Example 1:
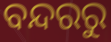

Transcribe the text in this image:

ବନ୍ଦରରୁ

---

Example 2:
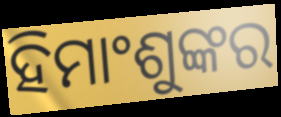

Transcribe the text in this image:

ହିମାଂଶୁଙ୍କର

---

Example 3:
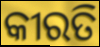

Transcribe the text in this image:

କୀରତି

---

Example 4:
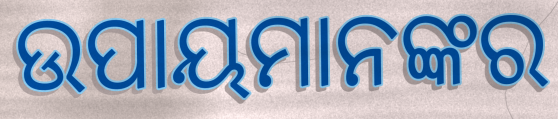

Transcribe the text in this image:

ଉପାୟମାନଙ୍କର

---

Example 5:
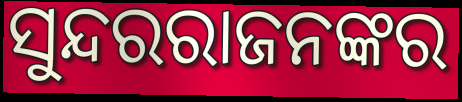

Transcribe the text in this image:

ସୁନ୍ଦରରାଜନଙ୍କର